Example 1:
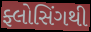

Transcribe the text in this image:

ફ્લોસિંગથી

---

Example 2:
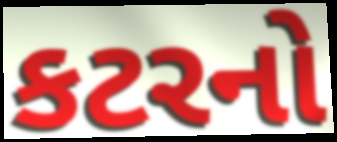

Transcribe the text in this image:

કટરનો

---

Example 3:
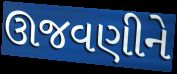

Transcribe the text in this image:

ઊજવણીને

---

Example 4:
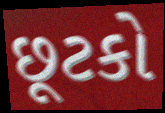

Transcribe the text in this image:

છૂટકો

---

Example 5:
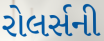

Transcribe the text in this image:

રોલર્સની